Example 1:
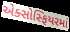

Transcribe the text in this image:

એક્સોસ્ફિયરમાં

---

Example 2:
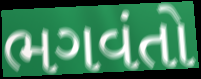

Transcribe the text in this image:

ભગવંતો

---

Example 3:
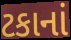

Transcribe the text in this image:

ટકાનાં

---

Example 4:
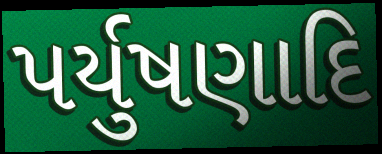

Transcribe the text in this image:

પર્યુષણાદિ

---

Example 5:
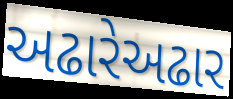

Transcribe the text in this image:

અઢારેઅઢાર